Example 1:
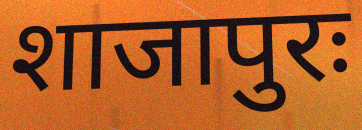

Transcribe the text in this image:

शाजापुरः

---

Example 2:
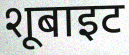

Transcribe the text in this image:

शूबाइट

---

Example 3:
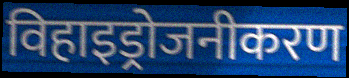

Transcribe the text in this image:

विहाइड्रोजनीकरण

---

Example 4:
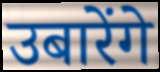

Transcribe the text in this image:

उबारेंगे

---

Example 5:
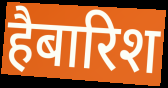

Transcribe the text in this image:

हैबारिश